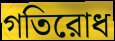
গতিরোধ